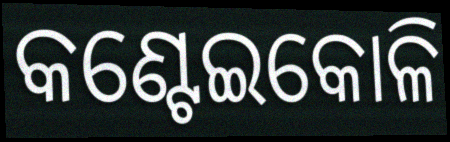
କଣ୍ଟେଇକୋଳି